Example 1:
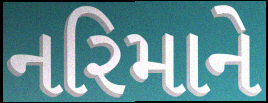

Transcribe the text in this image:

નરિમાને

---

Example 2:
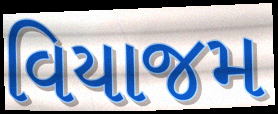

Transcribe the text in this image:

વિયાજમ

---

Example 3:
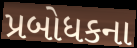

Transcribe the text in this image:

પ્રબોધકના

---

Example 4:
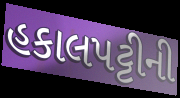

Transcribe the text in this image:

હકાલપટ્ટીની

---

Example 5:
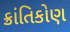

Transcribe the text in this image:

ક્રાંતિકોણ